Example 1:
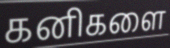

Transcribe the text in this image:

கனிகளை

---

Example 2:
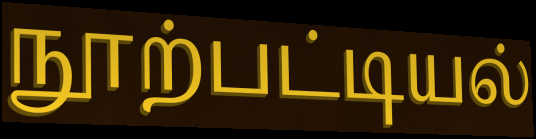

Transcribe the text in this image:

நூற்பட்டியல்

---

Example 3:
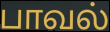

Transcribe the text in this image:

பாவல்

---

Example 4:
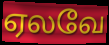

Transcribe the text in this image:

ஏலவே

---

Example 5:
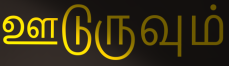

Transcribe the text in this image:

ஊடுருவும்